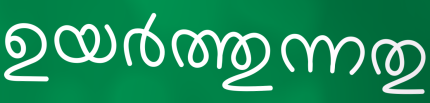
ഉയർത്തുന്നതു